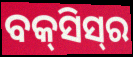
ବକ୍‌ସିସ୍‌ର